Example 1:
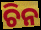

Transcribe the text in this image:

ଚିନ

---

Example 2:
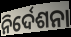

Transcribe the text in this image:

ନିର୍ଦେଶନା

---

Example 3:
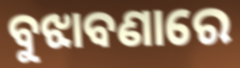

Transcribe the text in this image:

ବୁଝାବଣାରେ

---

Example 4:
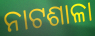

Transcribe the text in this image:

ନାଟଶାଳା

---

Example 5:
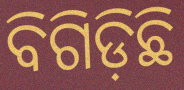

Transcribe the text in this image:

ବିଗିଡ଼ିଛି